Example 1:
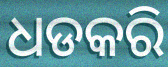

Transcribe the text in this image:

ଧଡକରି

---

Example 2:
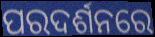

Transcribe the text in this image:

ପରଦର୍ଶନରେ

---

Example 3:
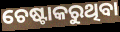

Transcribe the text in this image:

ଚେଷ୍ଟାକରୁଥିବା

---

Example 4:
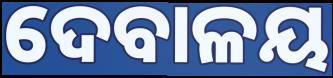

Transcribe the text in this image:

ଦେବାଳୟ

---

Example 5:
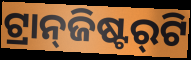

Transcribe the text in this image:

ଟ୍ରାନ୍‌ଜିଷ୍ଟର୍‌ଟି